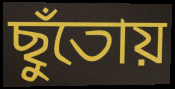
ছুঁতোয়